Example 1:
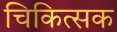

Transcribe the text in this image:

चिकित्सक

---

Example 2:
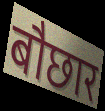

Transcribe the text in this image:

बौछार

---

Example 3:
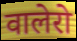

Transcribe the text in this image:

वालेरो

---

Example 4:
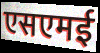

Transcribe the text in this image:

एसएमई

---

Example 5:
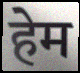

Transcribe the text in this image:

हेम